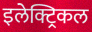
इलेक्ट्रिकल